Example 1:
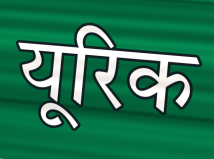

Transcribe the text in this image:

यूरिक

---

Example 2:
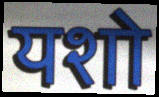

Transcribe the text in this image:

यशो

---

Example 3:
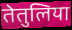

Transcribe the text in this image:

तेतुलिया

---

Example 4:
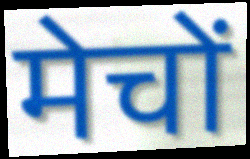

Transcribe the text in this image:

मेचों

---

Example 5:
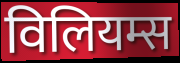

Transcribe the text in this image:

विलियम्‍स